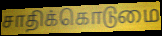
சாதிக்கொடுமை